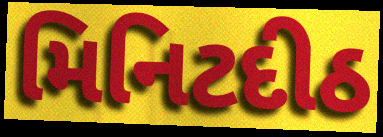
મિનિટદીઠ